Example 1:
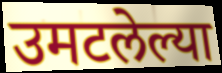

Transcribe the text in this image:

उमटलेल्या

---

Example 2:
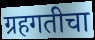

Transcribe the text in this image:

ग्रहगतीचा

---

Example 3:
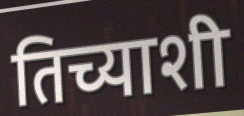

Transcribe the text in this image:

तिच्याशी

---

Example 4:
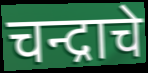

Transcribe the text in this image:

चन्द्राचे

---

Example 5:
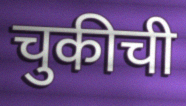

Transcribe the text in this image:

चुकीची